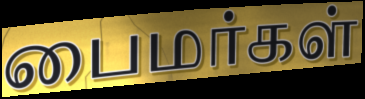
பைமர்கள்